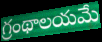
గ్రంథాలయమే